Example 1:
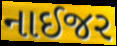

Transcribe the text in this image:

નાઈજર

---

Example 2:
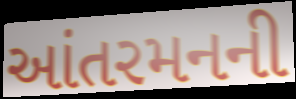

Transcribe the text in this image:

આંતરમનની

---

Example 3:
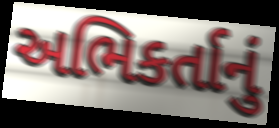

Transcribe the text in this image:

અભિકર્તાનું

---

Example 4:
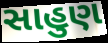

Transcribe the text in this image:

સાહુણ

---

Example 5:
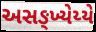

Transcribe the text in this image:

અસઙ્ખ્યેય્યે